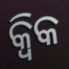
କ୍ୱିକ